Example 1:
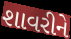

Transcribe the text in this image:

શાવરીને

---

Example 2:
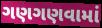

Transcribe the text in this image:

ગણગણવામાં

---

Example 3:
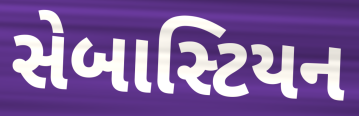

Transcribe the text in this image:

સેબાસ્ટિયન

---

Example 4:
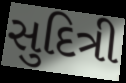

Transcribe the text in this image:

સુદિત્રી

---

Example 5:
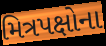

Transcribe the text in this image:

મિત્રપક્ષોના